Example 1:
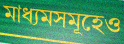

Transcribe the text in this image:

মাধ্য়মসমূহেও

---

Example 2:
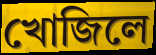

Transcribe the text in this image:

খোজিলে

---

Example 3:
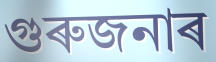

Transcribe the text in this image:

গুৰুজনাৰ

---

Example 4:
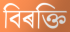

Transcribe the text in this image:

বিৰক্তি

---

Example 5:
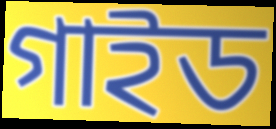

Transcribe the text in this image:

গাইড